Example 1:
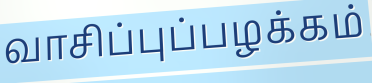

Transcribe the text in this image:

வாசிப்புப்பழக்கம்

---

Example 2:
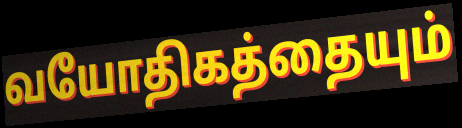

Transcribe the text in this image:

வயோதிகத்தையும்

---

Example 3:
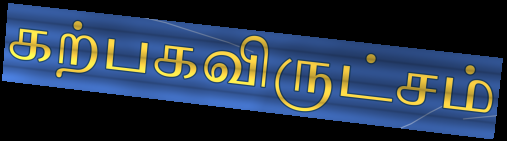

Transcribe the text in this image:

கற்பகவிருட்சம்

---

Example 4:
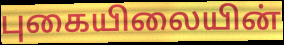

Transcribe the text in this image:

புகையிலையின்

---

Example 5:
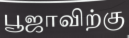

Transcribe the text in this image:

பூஜாவிற்கு